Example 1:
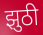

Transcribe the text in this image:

झुठी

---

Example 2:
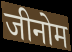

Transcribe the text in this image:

जीनोम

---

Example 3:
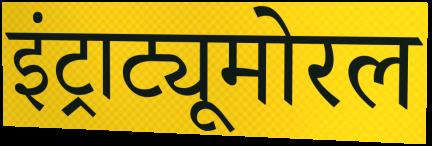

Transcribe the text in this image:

इंट्राट्यूमोरल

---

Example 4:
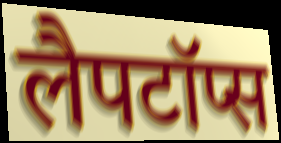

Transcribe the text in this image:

लैपटॉप्‍स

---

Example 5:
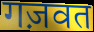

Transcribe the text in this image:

गज़वत